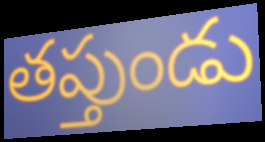
తప్తుండు